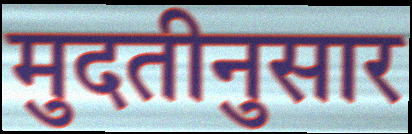
मुदतीनुसार